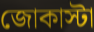
জোকাস্টা